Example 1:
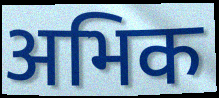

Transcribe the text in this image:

अभिक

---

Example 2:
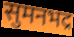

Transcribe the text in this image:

सुमनभद्र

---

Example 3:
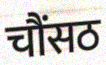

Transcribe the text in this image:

चौंसठ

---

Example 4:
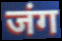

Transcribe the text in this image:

जंग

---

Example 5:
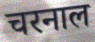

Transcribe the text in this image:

चरनाल